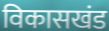
विकासखंड